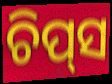
ଚିପ୍‌ସ